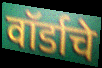
वॉर्डाचे